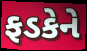
ફડકેને